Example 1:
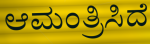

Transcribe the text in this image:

ಆಮಂತ್ರಿಸಿದೆ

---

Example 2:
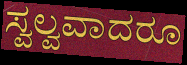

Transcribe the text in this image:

ಸ್ವಲ್ವವಾದರೂ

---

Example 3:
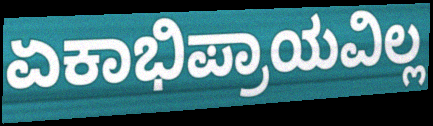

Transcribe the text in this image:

ಏಕಾಭಿಪ್ರಾಯವಿಲ್ಲ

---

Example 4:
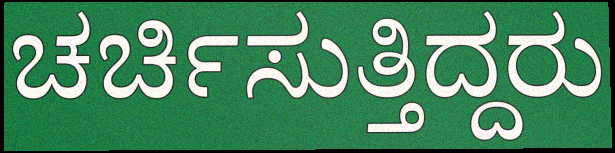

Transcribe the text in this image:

ಚರ್ಚಿಸುತ್ತಿದ್ದರು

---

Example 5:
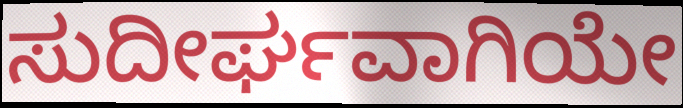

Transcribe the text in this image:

ಸುದೀರ್ಘವಾಗಿಯೇ